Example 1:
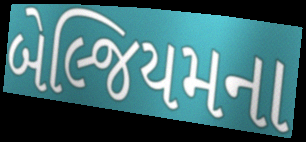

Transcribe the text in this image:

બેલ્જિયમના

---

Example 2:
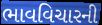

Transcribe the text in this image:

ભાવવિચારની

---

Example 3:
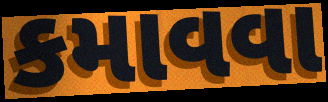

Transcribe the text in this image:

કમાવવા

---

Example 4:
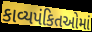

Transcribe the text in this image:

કાવ્યપંકિતઓમાં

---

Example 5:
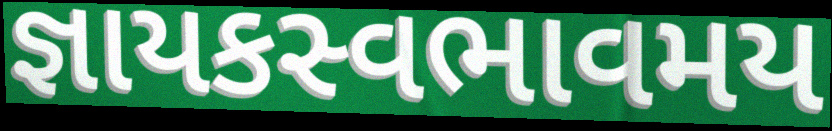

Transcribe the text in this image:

જ્ઞાયકસ્વભાવમય